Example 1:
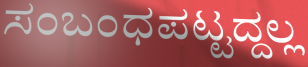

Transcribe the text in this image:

ಸಂಬಂಧಪಟ್ಟದ್ದಲ್ಲ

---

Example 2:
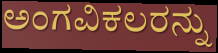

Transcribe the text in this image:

ಅಂಗವಿಕಲರನ್ನು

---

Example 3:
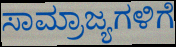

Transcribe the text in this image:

ಸಾಮ್ರಾಜ್ಯಗಳಿಗೆ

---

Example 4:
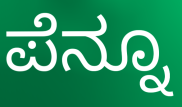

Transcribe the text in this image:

ಪೆನ್ನೂ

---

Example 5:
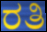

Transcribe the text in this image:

ರತಿ